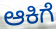
ಆಕಿಗೆ